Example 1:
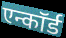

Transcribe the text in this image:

एन्कॉर्ड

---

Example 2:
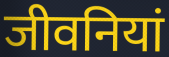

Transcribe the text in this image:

जीवनियां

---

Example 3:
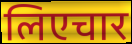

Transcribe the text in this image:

लिएचार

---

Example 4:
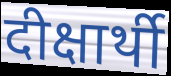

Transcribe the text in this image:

दीक्षार्थी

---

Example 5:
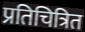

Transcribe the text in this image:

प्रतिचित्रित